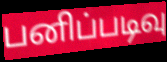
பனிப்படிவு